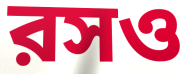
রসও